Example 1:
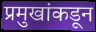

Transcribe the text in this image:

प्रमुखांकडून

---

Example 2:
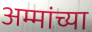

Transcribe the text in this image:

अम्मांच्या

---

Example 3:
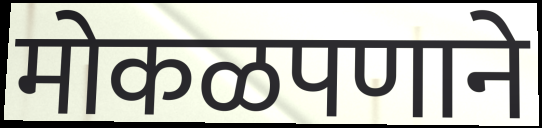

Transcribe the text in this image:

मोकळपणाने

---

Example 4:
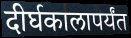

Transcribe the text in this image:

दीर्घकालापर्यंत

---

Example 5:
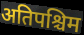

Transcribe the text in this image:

अतिपश्चिम